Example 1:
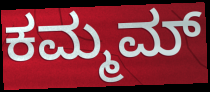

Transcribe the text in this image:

ಕಮ್ಮಮ್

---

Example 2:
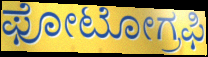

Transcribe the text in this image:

ಫೋಟೋಗ್ರಫಿ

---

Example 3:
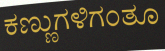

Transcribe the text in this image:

ಕಣ್ಣುಗಳಿಗಂತೂ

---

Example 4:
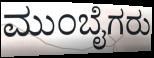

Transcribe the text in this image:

ಮುಂಬೈಗರು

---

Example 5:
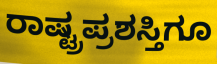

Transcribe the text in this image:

ರಾಷ್ಟ್ರಪ್ರಶಸ್ತಿಗೂ